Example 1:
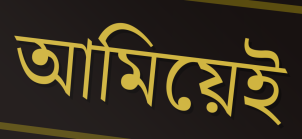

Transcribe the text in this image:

আমিয়েই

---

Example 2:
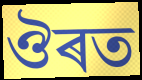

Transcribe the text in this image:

ঔৰত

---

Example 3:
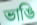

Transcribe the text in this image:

ভাঙি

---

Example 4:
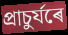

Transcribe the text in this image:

প্ৰাচুৰ্যৰে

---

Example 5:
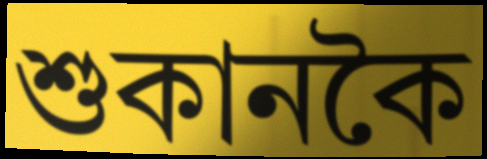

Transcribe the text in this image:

শুকানকৈ